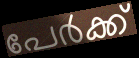
പേർക്ക്